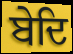
ਬੇਦਿ